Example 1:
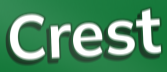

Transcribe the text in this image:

Crest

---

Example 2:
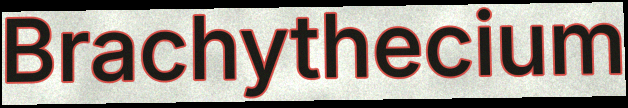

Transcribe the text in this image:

Brachythecium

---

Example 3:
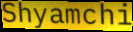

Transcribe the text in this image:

Shyamchi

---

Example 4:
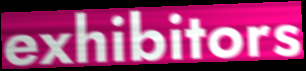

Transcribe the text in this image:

exhibitors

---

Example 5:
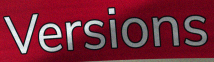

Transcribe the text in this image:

Versions